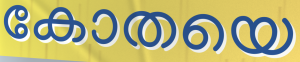
കോതയെ